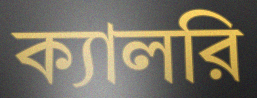
ক্যালরি